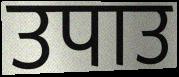
उपाउ